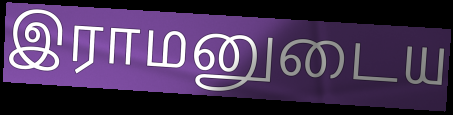
இராமனுடைய